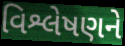
વિશ્લેષણને